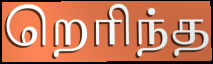
றெரிந்த